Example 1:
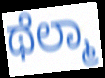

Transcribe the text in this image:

ಥೆಲ್ಮಾ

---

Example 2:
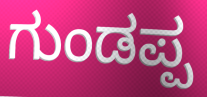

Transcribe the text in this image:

ಗುಂಡಪ್ಪ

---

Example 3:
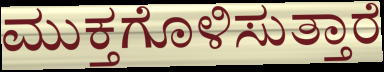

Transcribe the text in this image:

ಮುಕ್ತಗೊಳಿಸುತ್ತಾರೆ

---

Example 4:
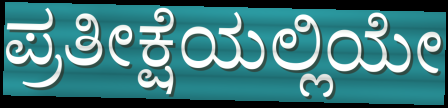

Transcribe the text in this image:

ಪ್ರತೀಕ್ಷೆಯಲ್ಲಿಯೇ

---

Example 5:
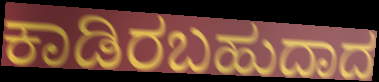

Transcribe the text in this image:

ಕಾಡಿರಬಹುದಾದ